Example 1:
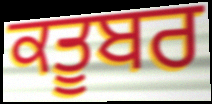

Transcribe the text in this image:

ਕਤੂਬਰ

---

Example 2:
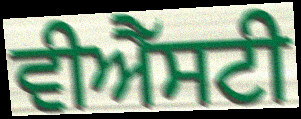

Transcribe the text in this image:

ਵੀਐੱਸਟੀ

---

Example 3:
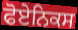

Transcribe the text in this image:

ਫੋਏਨਿਕਸ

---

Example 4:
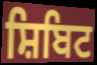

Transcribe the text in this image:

ਸ਼ਿਬਿਟ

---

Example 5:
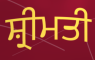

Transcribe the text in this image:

ਸ਼੍ਰੀਮਤੀ